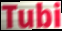
Tubi